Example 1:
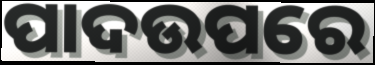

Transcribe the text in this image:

ପାଦଉପରେ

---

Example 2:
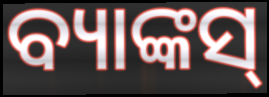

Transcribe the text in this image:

ବ୍ୟାଙ୍କସ୍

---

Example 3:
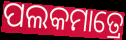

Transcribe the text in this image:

ପଲକମାତ୍ରେ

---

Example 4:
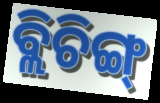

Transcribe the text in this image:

ବ୍ଲିଚିଙ୍ଗ୍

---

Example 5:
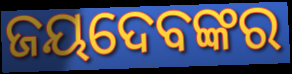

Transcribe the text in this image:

ଜୟଦେବଙ୍କର